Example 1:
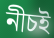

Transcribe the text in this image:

নীচই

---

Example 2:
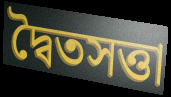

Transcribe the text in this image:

দ্বৈতসত্তা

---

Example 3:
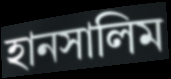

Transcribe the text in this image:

হানসালিম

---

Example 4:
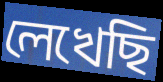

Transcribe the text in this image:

লেখেছি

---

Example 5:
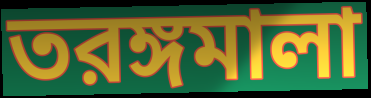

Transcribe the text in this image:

তরঙ্গমালা